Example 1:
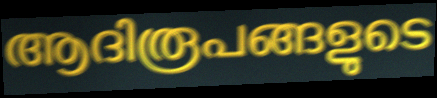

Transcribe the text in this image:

ആദിരൂപങ്ങളുടെ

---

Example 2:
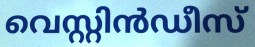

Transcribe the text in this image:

വെസ്റ്റിൻഡീസ്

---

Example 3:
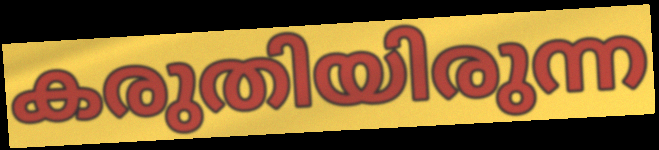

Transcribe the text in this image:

കരുതിയിരുന്ന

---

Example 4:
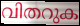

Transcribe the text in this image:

വിതറുക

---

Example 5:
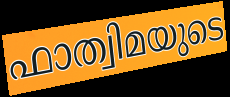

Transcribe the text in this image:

ഫാത്വിമയുടെ